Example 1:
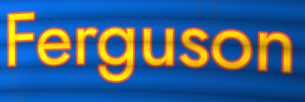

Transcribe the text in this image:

Ferguson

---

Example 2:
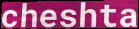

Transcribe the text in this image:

cheshta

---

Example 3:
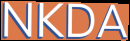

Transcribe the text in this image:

NKDA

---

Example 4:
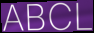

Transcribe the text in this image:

ABCL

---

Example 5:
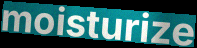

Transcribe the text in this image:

moisturize